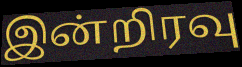
இன்றிரவு